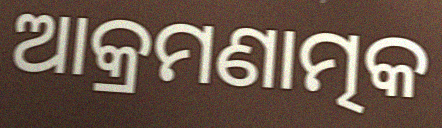
ଆକ୍ରମଣାତ୍ମକ